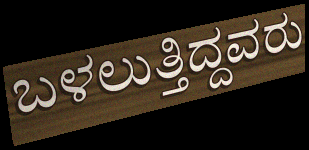
ಬಳಲುತ್ತಿದ್ದವರು